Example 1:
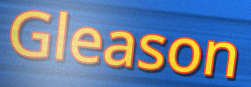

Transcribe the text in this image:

Gleason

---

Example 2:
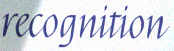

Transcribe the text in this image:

recognition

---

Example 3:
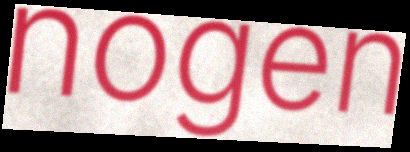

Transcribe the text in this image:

nogen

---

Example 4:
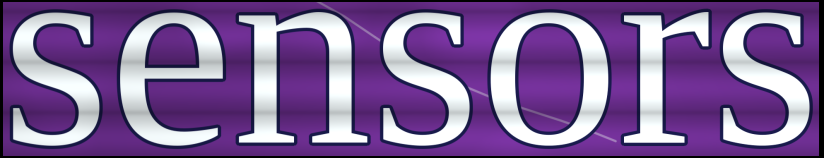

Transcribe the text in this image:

sensors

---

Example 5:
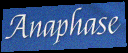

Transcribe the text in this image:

Anaphase